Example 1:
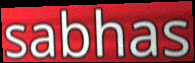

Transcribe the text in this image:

sabhas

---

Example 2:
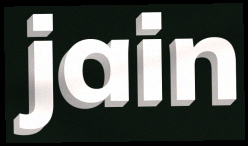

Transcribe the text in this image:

jain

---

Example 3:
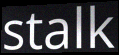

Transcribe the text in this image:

stalk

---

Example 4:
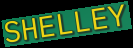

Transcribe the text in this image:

SHELLEY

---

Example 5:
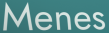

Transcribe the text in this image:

Menes